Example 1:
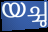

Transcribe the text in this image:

യച്ചു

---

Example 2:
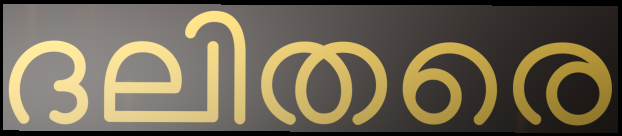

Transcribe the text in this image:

ദലിതരെ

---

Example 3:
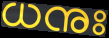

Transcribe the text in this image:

ധനുഃ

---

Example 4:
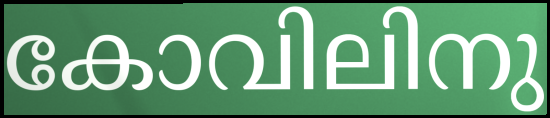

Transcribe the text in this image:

കോവിലിനു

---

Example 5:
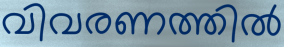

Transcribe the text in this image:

വിവരണത്തിൽ